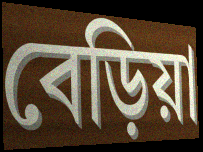
বেড়িয়া